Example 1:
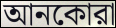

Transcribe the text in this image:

আনকোরা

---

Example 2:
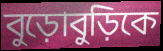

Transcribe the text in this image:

বুড়োবুড়িকে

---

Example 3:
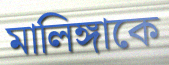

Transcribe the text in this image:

মালিঙ্গাকে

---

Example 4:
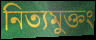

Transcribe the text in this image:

নিত্যমুক্তং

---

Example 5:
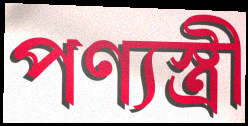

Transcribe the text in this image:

পণ্যস্ত্রী